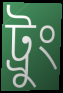
ট্রুং